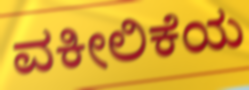
ವಕೀಲಿಕೆಯ